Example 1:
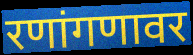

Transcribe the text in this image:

रणांगणावर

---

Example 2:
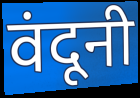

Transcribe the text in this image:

वंदूनी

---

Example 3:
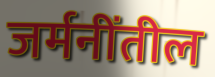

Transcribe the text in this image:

जर्मनींतील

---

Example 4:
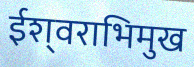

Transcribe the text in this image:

ईश्वराभिमुख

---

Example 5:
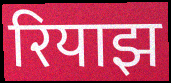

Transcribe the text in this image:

रियाझ